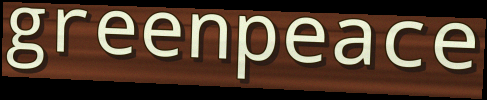
greenpeace